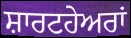
ਸ਼ਾਰਟਹੇਅਰਾਂ